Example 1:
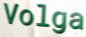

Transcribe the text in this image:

Volga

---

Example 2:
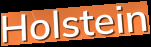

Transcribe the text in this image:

Holstein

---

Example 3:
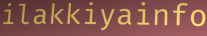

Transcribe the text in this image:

ilakkiyainfo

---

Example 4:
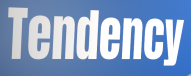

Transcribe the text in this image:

Tendency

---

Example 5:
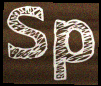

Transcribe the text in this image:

Sp